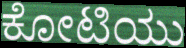
ಕೋಟಿಯು